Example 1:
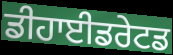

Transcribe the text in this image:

ਡੀਹਾਈਡਰੇਟਡ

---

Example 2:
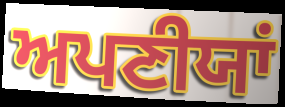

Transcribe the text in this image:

ਅਪਣੀਯਾਂ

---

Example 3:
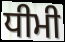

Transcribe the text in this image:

ਧੀਮੀ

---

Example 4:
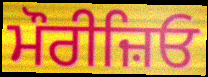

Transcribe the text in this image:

ਮੌਰੀਜ਼ਿਓ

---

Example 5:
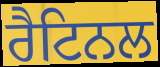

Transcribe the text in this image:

ਰੈਟਿਨਲ